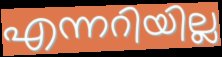
എന്നറിയില്ല